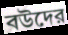
বউদের